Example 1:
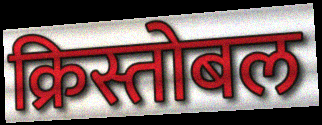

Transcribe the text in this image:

क्रिस्तोबल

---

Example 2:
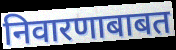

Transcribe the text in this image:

निवारणाबाबत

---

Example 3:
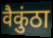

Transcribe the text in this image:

वैकुंठा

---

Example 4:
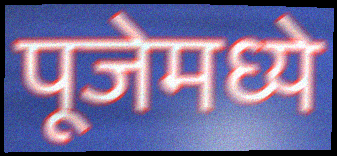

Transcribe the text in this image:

पूजेमध्ये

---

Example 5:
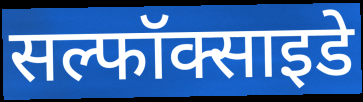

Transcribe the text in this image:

सल्फॉक्साइडे